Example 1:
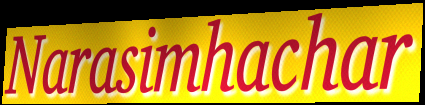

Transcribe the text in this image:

Narasimhachar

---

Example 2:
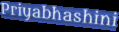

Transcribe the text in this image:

Priyabhashini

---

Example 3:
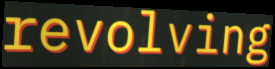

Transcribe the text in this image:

revolving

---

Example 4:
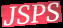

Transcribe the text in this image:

JSPS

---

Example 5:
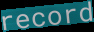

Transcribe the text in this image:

record